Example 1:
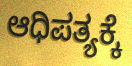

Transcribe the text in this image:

ಆಧಿಪತ್ಯಕ್ಕೆ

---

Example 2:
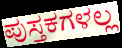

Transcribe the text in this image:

ಪುಸ್ತಕಗಳಲ್ಲ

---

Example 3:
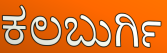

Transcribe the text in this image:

ಕಲಬುರ್ಗಿ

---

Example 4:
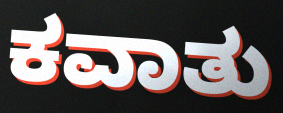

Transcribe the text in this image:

ಕವಾತು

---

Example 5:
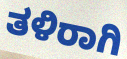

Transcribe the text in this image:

ತಳಿರಾಗಿ